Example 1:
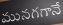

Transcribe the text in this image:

మునగగానే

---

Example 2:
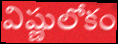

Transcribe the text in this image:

విష్ణులోకం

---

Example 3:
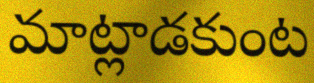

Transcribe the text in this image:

మాట్లాడకుంట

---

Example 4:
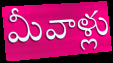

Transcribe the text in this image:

మీవాళ్లు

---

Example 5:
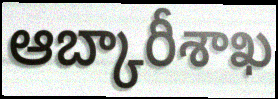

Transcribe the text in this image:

ఆబ్కారీశాఖ